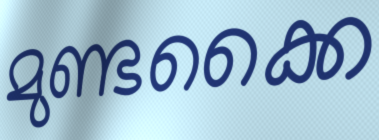
മുണ്ടക്കൈ